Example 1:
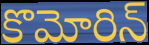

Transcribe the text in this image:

కొమోరిన్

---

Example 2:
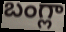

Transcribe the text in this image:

బంగ్లా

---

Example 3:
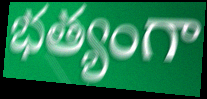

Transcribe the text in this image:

భత్యంగా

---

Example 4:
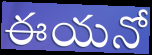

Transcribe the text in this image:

ఈయనో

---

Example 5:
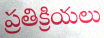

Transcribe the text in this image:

ప్రతిక్రియలు